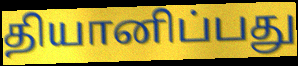
தியானிப்பது